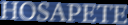
HOSAPETE